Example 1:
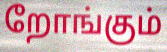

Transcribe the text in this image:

றோங்கும்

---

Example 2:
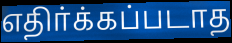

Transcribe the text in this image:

எதிர்க்கப்படாத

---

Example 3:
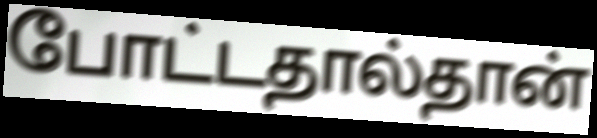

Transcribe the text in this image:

போட்டதால்தான்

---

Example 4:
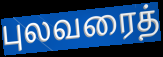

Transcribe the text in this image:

புலவரைத்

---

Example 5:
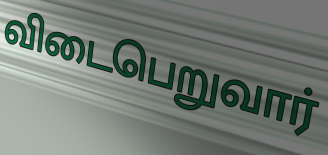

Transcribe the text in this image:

விடைபெறுவார்